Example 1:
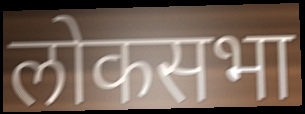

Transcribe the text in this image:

लोकसभा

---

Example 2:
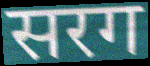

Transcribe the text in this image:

सरग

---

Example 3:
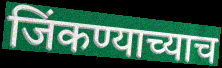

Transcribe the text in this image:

जिंकण्याच्याच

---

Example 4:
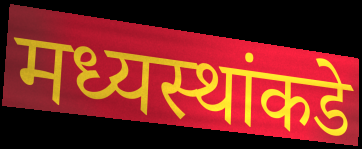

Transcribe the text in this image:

मध्यस्थांकडे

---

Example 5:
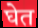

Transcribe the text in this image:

घेत